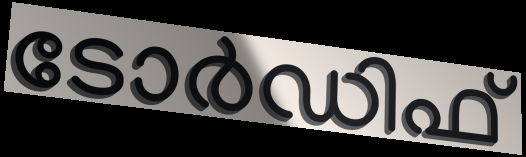
ടോർഡിഫ്